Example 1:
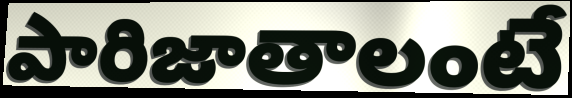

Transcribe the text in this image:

పారిజాతాలంటే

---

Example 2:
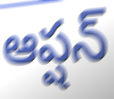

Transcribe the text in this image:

ఆప్షన్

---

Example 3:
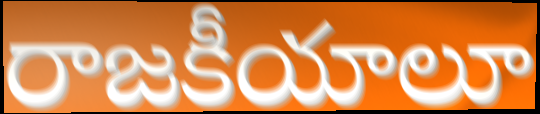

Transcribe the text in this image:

రాజకీయాలూ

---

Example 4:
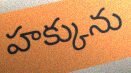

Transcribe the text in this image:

హక్కును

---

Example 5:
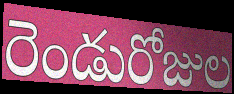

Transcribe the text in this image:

రెండురోజుల